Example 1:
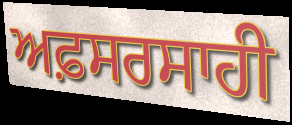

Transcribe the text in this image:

ਅਫ਼ਸਰਸਾਹੀ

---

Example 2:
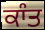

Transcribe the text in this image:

ਕਾੰਤ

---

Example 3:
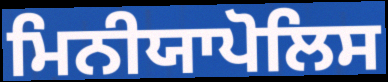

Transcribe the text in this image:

ਮਿਨੀਯਾਪੋਲਿਸ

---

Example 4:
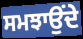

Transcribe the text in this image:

ਸਮਝਾਉਂਦੇ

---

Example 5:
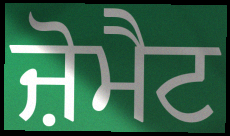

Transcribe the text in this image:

ਜ਼ੋਮੈਟ